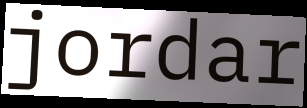
jordar